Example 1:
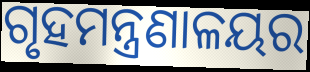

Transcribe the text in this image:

ଗୃହମନ୍ତ୍ରଣାଳୟର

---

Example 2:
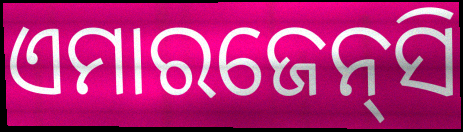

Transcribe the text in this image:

ଏମାରଜେନ୍‌ସି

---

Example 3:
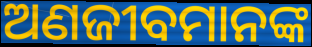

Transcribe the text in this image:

ଅଣଜୀବମାନଙ୍କ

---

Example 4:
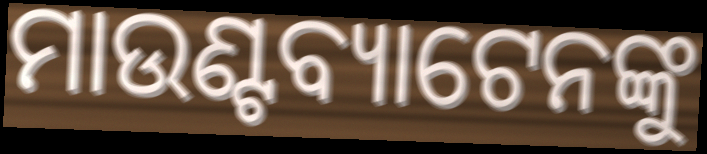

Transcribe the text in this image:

ମାଉଣ୍ଟବ୍ୟାଟେନଙ୍କୁ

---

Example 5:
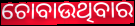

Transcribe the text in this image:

ଚୋବାଉଥିବାର